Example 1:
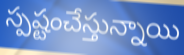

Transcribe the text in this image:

స్పష్టంచేస్తున్నాయి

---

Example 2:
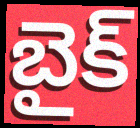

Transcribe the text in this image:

బైక్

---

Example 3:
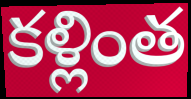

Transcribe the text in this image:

కళ్లింత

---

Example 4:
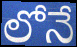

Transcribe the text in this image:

లోనే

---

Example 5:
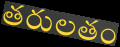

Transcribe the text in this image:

తరులతం